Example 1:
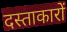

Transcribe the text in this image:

दस्ताकारों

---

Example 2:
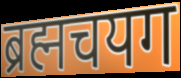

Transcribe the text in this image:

ब्रह्मचयग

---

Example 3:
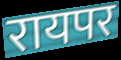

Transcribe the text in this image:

रायपर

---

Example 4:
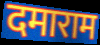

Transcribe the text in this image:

दमाराम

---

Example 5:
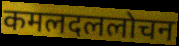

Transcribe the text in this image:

कमलदललोचन